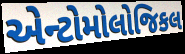
એન્ટોમોલોજિકલ